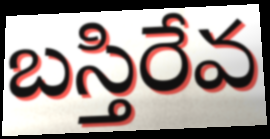
బస్తిరేవ